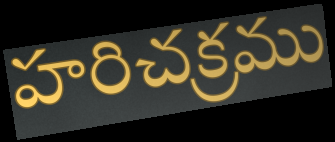
హరిచక్రము